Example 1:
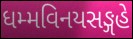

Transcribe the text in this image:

ધમ્મવિનયસઙ્ગહે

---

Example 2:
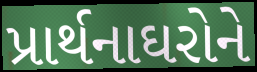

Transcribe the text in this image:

પ્રાર્થનાઘરોને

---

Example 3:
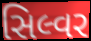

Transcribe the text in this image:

સિલ્વર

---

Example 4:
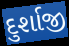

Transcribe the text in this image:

દુર્શાજી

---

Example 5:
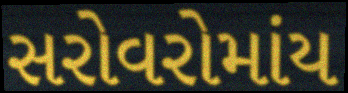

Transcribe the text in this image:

સરોવરોમાંય